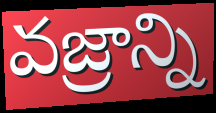
వజ్రాన్ని